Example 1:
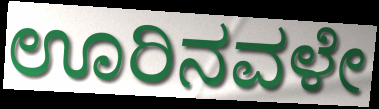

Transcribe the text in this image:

ಊರಿನವಳೇ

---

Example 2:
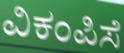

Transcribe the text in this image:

ವಿಕಂಪಿಸೆ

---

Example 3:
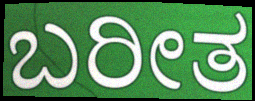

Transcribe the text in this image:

ಬರೀತ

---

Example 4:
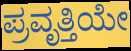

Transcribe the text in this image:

ಪ್ರವೃತ್ತಿಯೇ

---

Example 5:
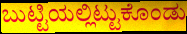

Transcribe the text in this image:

ಬುಟ್ಟಿಯಲ್ಲಿಟ್ಟುಕೊಂಡು